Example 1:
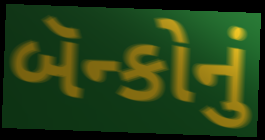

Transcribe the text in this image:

બૅન્કોનું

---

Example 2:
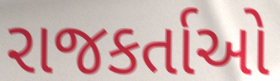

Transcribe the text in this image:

રાજકર્તાઓ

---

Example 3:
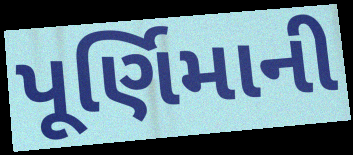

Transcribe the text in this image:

પૂર્ણિમાની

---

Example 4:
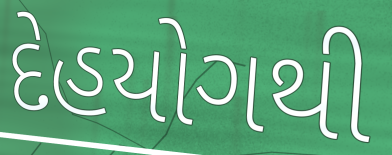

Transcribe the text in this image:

દેહયોગથી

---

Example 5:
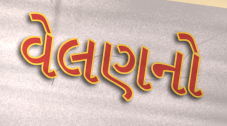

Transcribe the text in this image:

વેલણનો